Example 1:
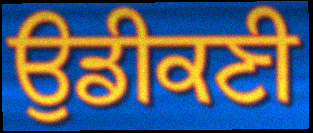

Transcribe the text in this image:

ਉਡੀਕਣੀ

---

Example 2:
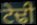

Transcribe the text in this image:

ਟੇਢੀ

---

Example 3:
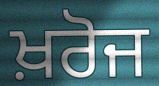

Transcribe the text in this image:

ਖ਼ਰੋਜ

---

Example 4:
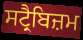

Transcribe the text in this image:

ਸਟ੍ਰੈਬਿਜ਼ਮ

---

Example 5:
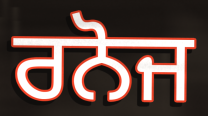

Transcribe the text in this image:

ਰਨੋਜ